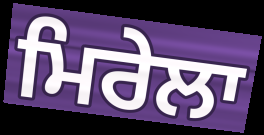
ਮਿਰੇਲਾ